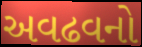
અવઢવનો